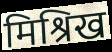
मिश्रिख